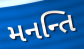
મનન્તિ